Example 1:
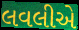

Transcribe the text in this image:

લવલીએ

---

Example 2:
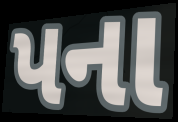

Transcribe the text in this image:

પના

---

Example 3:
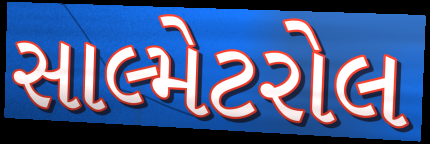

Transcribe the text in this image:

સાલ્મેટરોલ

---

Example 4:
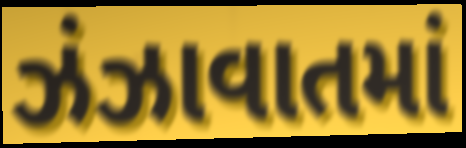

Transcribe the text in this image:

ઝંઝાવાતમાં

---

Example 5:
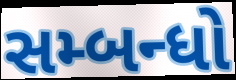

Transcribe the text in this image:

સમ્બન્ધો